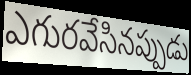
ఎగురవేసినప్పుడు